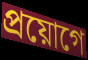
প্রয়োগে